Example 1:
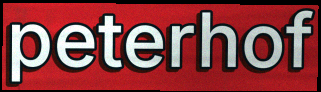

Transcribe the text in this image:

peterhof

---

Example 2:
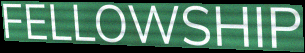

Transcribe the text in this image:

FELLOWSHIP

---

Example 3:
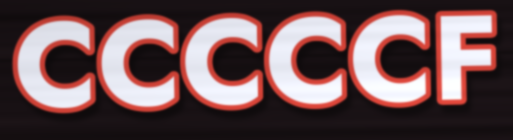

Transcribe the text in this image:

CCCCCF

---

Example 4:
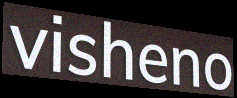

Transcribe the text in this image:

visheno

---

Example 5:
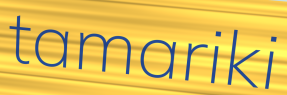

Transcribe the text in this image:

tamariki